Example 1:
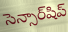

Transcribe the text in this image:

సెన్సార్‌షిప్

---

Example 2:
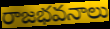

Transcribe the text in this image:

రాజభవనాలు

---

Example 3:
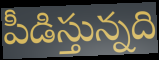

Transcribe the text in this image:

పీడిస్తున్నది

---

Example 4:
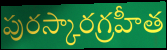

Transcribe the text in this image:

పురస్కారగ్రహీత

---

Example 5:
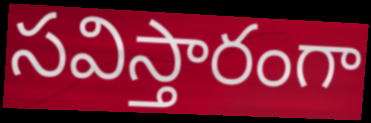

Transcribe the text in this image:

సవిస్తారంగా